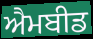
ਐਮਬੀਡ